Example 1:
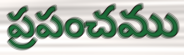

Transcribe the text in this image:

ప్రపంచము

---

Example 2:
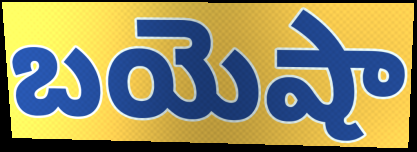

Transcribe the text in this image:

బయెషా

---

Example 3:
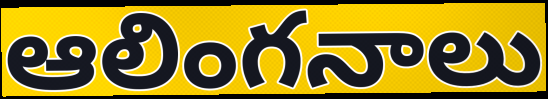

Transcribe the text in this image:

ఆలింగనాలు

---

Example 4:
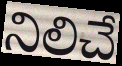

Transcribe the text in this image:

నిలిచే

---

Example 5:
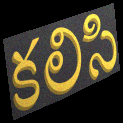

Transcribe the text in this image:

కలిసి